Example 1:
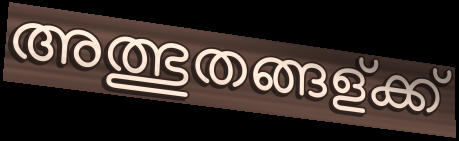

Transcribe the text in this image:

അത്ഭുതങ്ങള്ക്ക്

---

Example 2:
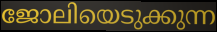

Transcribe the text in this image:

ജോലിയെടുക്കുന്ന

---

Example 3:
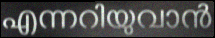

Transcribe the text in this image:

എന്നറിയുവാൻ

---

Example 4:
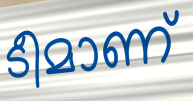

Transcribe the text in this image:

ടീമാണ്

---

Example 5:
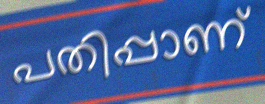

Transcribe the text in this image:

പതിപ്പാണ്